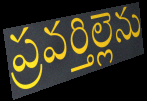
ప్రవర్తిల్లెను